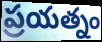
ప్రయత్నం